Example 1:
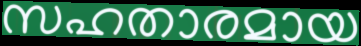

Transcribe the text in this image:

സഹതാരമായ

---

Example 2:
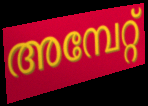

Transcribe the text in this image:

അമ്പേറ്റ്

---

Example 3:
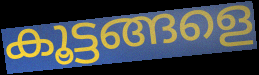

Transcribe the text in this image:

കൂട്ടങ്ങളെ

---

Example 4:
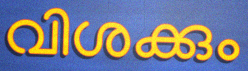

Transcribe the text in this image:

വിശക്കും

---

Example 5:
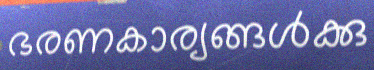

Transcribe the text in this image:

ഭരണകാര്യങ്ങൾക്കു